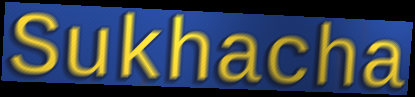
Sukhacha